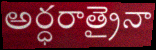
అర్ధరాత్రైనా